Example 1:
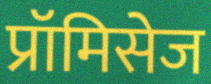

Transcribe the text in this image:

प्रॉमिसेज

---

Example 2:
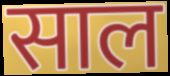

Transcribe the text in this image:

साल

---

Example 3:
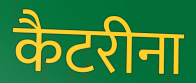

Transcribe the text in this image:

कैटरीना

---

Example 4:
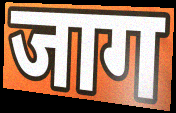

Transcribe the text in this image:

जाग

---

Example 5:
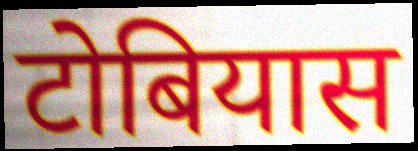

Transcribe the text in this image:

टोबियास